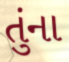
તુંના